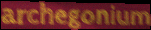
archegonium